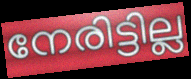
നേരിട്ടില്ല